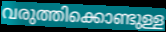
വരുത്തിക്കൊണ്ടുള്ള